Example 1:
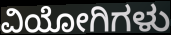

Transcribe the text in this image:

ವಿಯೋಗಿಗಳು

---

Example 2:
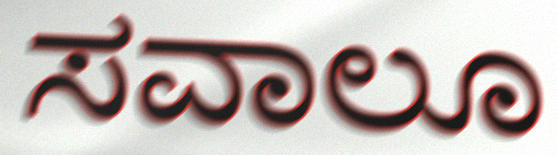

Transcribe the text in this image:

ಸವಾಲೂ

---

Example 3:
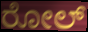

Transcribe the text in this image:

ರೋಲ್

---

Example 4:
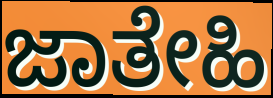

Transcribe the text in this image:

ಜಾತೇಹಿ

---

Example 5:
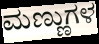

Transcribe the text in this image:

ಮಣ್ಣುಗಳ